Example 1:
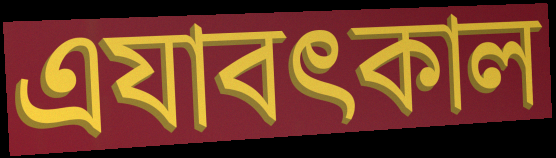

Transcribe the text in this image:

এযাবৎকাল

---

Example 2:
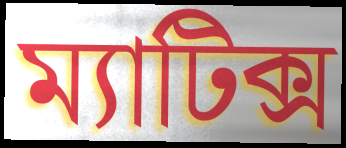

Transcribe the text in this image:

ম্যাটিক্স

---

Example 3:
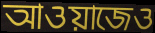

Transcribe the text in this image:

আওয়াজেও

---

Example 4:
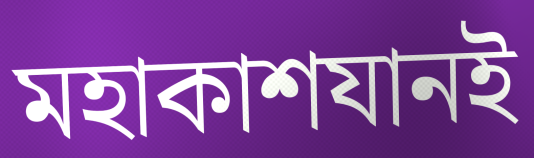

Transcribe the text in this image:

মহাকাশযানই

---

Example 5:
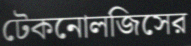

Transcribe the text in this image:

টেকনোলজিসের